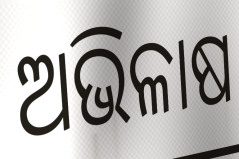
ଅଭିଳାଷ